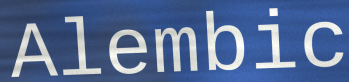
Alembic